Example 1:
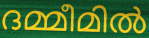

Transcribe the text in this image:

ദമ്മീമിൽ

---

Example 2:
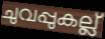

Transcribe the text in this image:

ചുവപ്പുകല്ല്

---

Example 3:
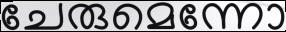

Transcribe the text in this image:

ചേരുമെന്നോ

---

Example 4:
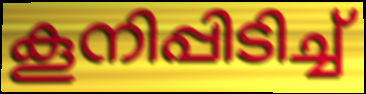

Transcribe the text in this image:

കൂനിപ്പിടിച്ച്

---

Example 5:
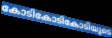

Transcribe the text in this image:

കോടികോടികോടിയുടെ